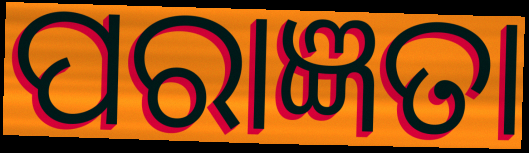
ପରାଜ୍ଞତା